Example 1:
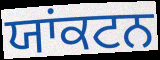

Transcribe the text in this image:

ਯਾਂਕਟਨ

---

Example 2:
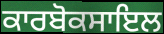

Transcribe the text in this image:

ਕਾਰਬੋਕਸਾਇਲ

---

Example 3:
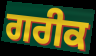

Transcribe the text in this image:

ਗਰੀਕ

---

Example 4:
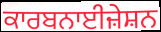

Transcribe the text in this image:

ਕਾਰਬਨਾਈਜ਼ੇਸ਼ਨ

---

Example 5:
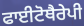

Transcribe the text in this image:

ਫਾਈਟੋਥੈਰੇਪੀ